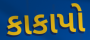
કાકાપો